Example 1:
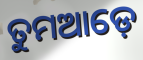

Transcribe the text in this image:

ତୁମଆଡ଼େ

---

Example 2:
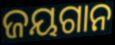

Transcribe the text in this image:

ଜୟଗାନ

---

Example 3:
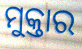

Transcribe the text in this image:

ମୁକ୍ତାର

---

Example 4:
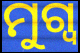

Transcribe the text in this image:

ମୁଗ୍ୱ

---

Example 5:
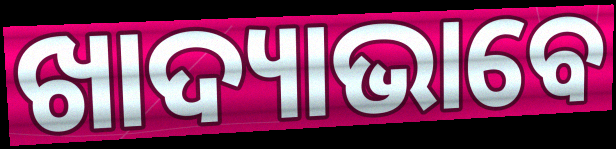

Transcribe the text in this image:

ଖାଦ୍ୟାଭାବେ